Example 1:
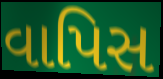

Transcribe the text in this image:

વાપિસ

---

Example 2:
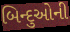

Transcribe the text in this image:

બિન્દુઓની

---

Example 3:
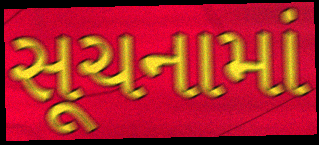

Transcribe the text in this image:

સૂચનામાં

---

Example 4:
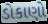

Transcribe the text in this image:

ડોકાણો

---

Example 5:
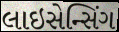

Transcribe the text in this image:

લાઇસેન્સિંગ